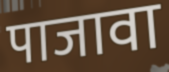
पाजावा